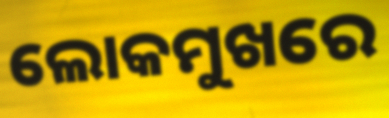
ଲୋକମୁଖରେ